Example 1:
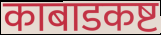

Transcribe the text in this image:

काबाडकष्ट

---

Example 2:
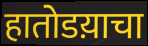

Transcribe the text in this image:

हातोडय़ाचा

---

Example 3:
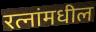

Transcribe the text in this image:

रत्नांमधील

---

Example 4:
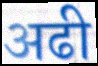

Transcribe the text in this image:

अढी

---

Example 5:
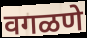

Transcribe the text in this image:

वगळणे